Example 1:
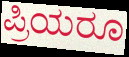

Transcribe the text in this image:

ಪ್ರಿಯರೂ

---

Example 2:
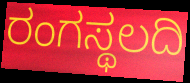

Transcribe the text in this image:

ರಂಗಸ್ಥಲದಿ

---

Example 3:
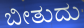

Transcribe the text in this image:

ಬೀತುದು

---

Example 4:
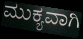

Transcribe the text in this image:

ಮುಕ್ಯವಾಗಿ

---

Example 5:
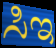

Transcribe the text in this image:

ಸಿಇ